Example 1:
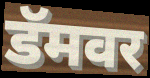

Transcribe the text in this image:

डॅमवर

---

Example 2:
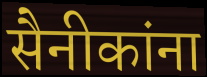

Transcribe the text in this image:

सैनीकांना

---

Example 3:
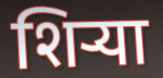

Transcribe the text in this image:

शिर्‍या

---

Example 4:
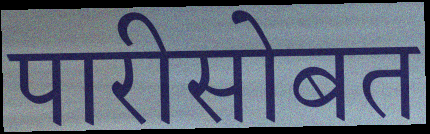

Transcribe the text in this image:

पारीसोबत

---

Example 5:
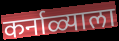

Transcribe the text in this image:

कर्नाळ्याला